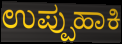
ಉಪ್ಪುಹಾಕಿ